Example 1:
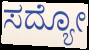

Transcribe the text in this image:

ಸದ್ಯೋ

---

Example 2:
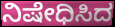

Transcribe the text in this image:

ನಿಷೇಧಿಸಿದ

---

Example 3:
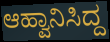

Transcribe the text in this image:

ಆಹ್ವಾನಿಸಿದ್ದ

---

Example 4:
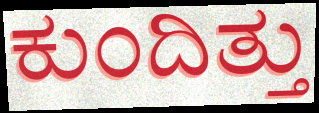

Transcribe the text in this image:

ಕುಂದಿತ್ತು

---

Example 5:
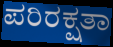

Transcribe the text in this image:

ಪರಿರಕ್ಷತಾ